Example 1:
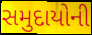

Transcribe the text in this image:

સમુદાયોની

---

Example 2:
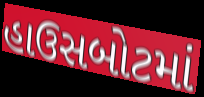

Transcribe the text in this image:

હાઉસબોટમાં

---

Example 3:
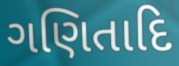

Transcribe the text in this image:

ગણિતાદિ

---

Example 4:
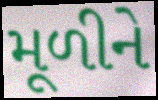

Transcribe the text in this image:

મૂળીને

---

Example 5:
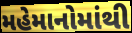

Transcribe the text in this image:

મહેમાનોમાંથી